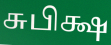
சுபிக்ஷ